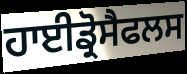
ਹਾਈਡ੍ਰੋਸੈਫਲਸ